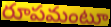
రూపమంటూ